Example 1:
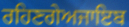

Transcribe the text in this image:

ਰਹਿਣਗੇਅਜਾਇਬ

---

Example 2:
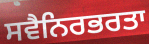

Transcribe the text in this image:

ਸਵੈਨਿਰਭਰਤਾ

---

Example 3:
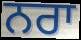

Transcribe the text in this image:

ਨਰਾ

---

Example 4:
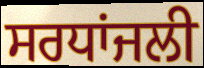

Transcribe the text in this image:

ਸਰਧਾਂਜਲੀ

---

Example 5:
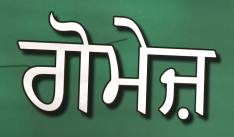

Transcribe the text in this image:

ਗੋਮੇਜ਼